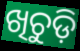
ଖିଚୁଡ଼ି